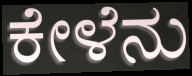
ಕೇಳೆನು